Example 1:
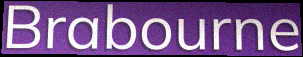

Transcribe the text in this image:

Brabourne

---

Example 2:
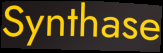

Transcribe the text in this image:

Synthase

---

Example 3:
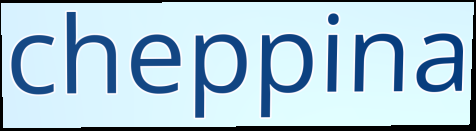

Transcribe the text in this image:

cheppina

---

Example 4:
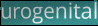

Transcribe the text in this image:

urogenital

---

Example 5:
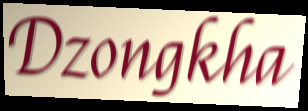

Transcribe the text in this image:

Dzongkha